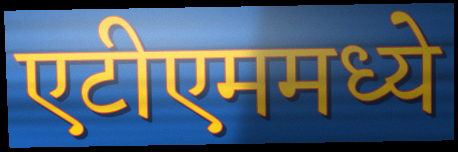
एटीएममध्ये